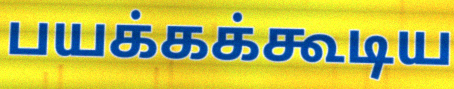
பயக்கக்கூடிய